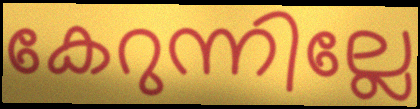
കേറുന്നില്ലേ